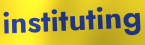
instituting